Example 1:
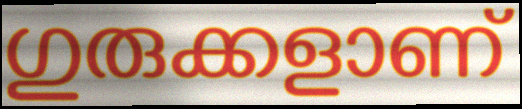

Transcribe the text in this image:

ഗുരുക്കളാണ്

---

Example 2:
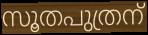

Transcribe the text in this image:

സൂതപുത്രന്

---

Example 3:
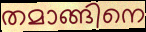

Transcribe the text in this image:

തമാങ്ങിനെ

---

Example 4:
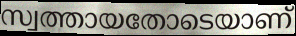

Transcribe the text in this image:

സ്വത്തായതോടെയാണ്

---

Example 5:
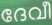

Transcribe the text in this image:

ദേവീ